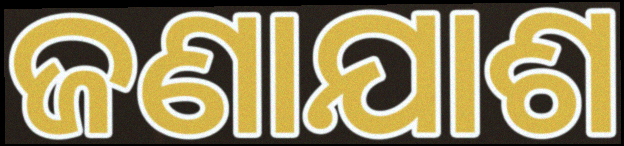
ଜଣାଯାଶ